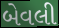
બેવલી